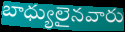
బాధ్యులైనవారు